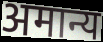
अमान्य